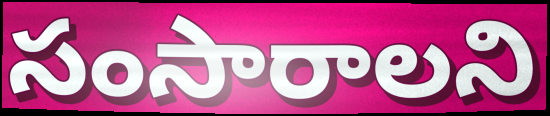
సంసారాలని